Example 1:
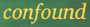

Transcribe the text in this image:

confound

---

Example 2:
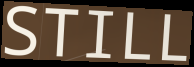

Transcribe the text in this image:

STILL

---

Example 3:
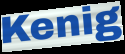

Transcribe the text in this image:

Kenig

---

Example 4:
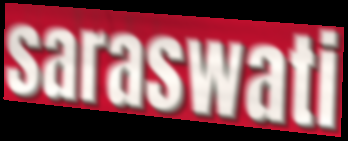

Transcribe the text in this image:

saraswati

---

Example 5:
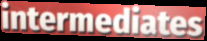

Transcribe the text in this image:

intermediates